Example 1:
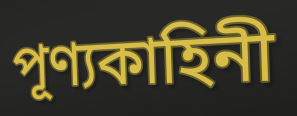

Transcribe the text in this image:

পূণ্যকাহিনী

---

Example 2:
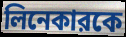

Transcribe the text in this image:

লিনেকারকে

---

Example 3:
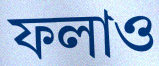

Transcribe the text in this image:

ফলাও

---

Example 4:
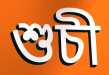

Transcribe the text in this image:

শুচী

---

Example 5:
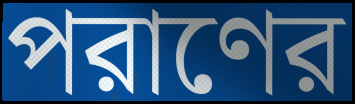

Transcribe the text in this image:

পরাণের